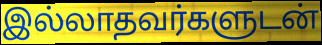
இல்லாதவர்களுடன்